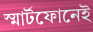
স্মার্টফোনেই